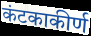
कंटकाकीर्ण